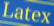
Latex